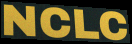
NCLC